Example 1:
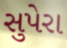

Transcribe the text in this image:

સુપેરા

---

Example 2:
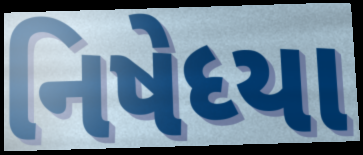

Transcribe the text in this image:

નિષેધ્યા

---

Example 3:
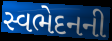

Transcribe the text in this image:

સ્વભેદનની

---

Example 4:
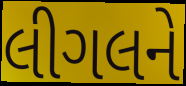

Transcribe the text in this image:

લીગલને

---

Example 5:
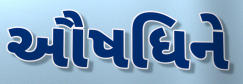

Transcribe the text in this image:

ઔષધિને